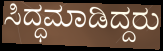
ಸಿದ್ಧಮಾಡಿದ್ದರು